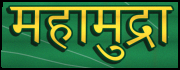
महामुद्रा